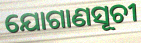
ଯୋଗାଣସୂଚୀ